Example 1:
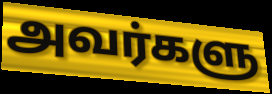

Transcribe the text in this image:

அவர்களு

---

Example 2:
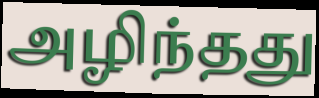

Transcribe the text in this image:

அழிந்தது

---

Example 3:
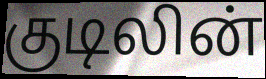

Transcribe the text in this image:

குடிலின்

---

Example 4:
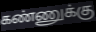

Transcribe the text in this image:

கண்ணுக்கு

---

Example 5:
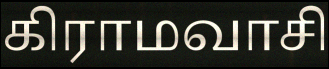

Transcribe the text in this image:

கிராமவாசி